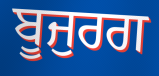
ਬੂਜੁਰਗ